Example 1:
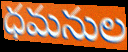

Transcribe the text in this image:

ధమనుల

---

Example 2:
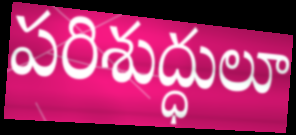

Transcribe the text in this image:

పరిశుద్ధులూ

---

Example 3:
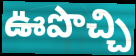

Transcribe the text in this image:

ఊపొచ్చి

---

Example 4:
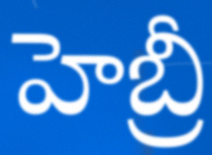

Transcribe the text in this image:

హెబ్రీ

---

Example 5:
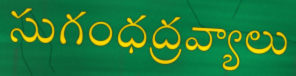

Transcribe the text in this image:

సుగంధద్రవ్యాలు